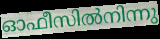
ഓഫീസിൽനിന്നു